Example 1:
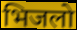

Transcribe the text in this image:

भिजलो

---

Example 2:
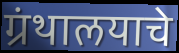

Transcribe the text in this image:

ग्रंथालयाचे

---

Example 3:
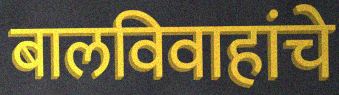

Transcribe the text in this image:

बालविवाहांचे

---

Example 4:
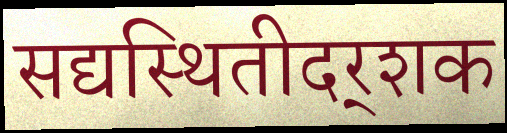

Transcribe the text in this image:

सद्यस्थितीदर्शक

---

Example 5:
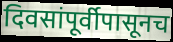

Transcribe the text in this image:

दिवसांपूर्वीपासूनच